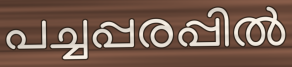
പച്ചപ്പരപ്പിൽ